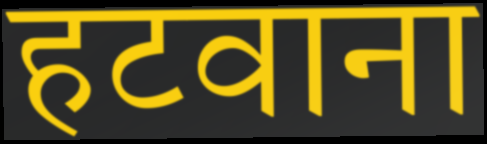
हटवाना